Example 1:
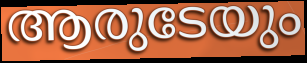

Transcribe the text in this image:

ആരുടേയും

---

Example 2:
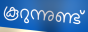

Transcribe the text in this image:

കൂറുന്നുണ്ട്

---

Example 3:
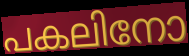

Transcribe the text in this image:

പകലിനോ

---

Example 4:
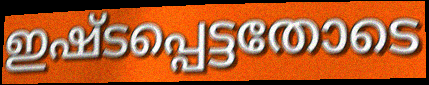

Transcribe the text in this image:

ഇഷ്ടപ്പെട്ടതോടെ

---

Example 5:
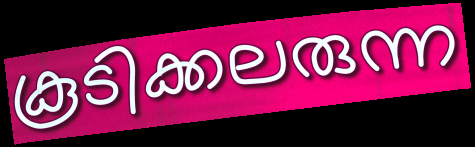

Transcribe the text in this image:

കൂടിക്കലരുന്ന